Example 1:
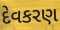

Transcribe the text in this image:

દેવકરણ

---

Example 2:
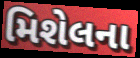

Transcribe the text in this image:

મિશેલના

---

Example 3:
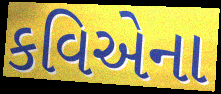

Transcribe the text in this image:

કવિએના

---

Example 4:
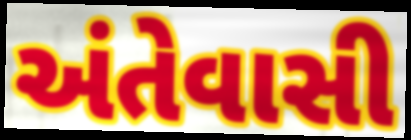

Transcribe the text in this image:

અંતેવાસી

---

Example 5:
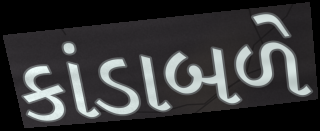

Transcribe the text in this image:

કાંડાબળે